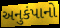
અનુકંપાનો